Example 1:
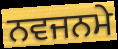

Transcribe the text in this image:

ਨਵਜਨਮੇ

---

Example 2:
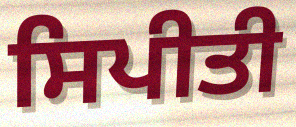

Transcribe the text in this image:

ਸਿਪੀਤੀ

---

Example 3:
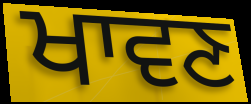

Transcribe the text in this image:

ਖਾਵਣ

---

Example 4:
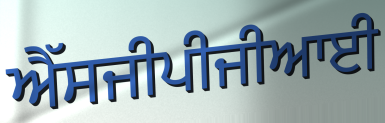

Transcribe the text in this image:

ਐੱਸਜੀਪੀਜੀਆਈ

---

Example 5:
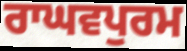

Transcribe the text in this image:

ਰਾਘਵਪੁਰਮ